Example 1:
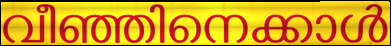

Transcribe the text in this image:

വീഞ്ഞിനെക്കാൾ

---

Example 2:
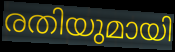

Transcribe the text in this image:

രതിയുമായി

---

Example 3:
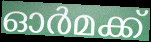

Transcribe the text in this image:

ഓർമക്ക്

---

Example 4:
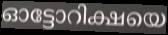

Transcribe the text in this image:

ഓട്ടോറിക്ഷയെ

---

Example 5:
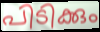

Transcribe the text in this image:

പിടിക്കും